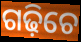
ଗଢ଼ିଚେ